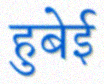
हुबेई